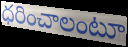
ధరించాలంటూ